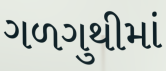
ગળગુથીમાં